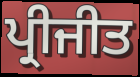
ਪ੍ਰੀਜੀਤ